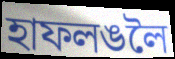
হাফলঙলৈ